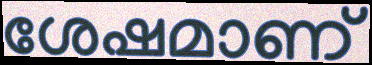
ശേഷമാണ്